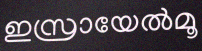
ഇസ്രായേൽമൂ